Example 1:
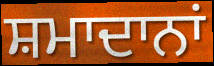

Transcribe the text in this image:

ਸ਼ਮਾਦਾਨਾਂ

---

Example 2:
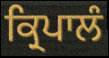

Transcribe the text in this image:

ਕ੍ਰਿਪਾਲੰ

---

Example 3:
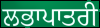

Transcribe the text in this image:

ਲਭਾਪਾਤਰੀ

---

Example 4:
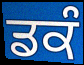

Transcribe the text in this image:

ਡਕੰ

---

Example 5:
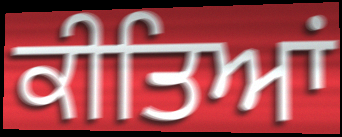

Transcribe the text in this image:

ਕੀਤਿਆਂ